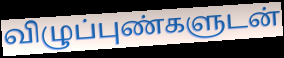
விழுப்புண்களுடன்